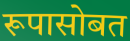
रूपासोबत